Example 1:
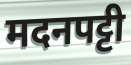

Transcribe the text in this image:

मदनपट्टी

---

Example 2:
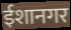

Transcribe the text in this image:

ईशानगर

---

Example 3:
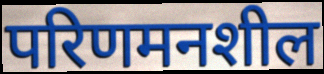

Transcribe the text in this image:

परिणमनशील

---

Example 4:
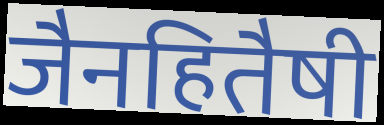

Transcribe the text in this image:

जैनहितैषी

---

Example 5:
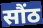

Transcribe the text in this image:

सौंठ